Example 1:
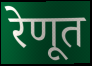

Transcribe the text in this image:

रेणूत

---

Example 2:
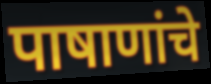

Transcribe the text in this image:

पाषाणांचे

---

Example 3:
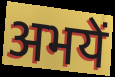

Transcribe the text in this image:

अभयें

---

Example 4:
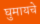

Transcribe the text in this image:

घुमायचे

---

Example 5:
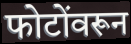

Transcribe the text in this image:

फोटोंवरून